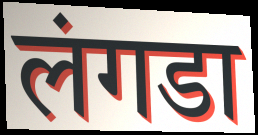
लंगडा